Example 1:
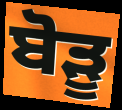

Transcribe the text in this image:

ਬੋੜੂ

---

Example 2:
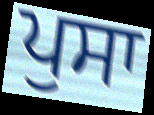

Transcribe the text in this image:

ਪੁਸਾ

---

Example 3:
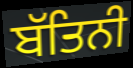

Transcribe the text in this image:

ਬੱਤਿਨੀ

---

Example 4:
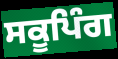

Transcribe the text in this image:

ਸਕੂਪਿੰਗ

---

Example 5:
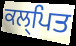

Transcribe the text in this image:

ਕਲ੍ਪਿਤ